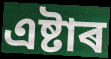
এষ্টাৰ